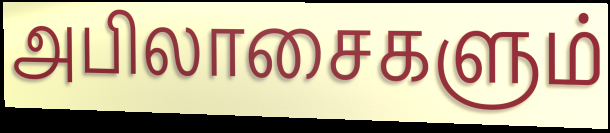
அபிலாசைகளும்